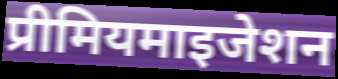
प्रीमियमाइजेशन